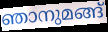
ഞാനുമങ്ങ്